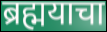
ब्रह्मयाचा